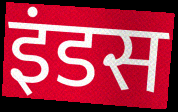
इंडस